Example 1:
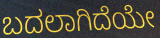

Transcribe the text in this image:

ಬದಲಾಗಿದೆಯೇ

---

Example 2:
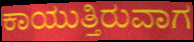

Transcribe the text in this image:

ಕಾಯುತ್ತಿರುವಾಗ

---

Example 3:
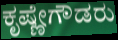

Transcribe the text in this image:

ಕೃಷ್ಣೇಗೌಡರು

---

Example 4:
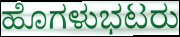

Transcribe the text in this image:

ಹೊಗಳುಭಟರು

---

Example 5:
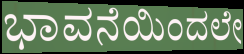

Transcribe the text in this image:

ಭಾವನೆಯಿಂದಲೇ